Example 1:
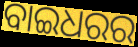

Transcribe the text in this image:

ବାଇଧରର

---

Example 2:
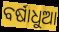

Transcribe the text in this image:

ବର୍ଷାଧୁଆ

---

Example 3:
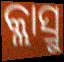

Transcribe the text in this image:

କ୍ଲାସ୍ରୁ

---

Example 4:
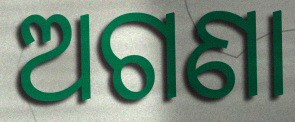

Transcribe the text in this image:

ଅଗଣା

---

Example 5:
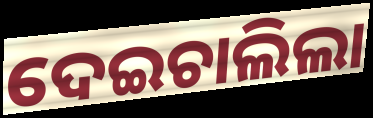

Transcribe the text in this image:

ଦେଇଚାଲିଲା